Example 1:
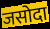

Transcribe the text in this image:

जसोदा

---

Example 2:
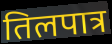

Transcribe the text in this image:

तिलपात्र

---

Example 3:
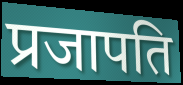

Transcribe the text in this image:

प्रजापति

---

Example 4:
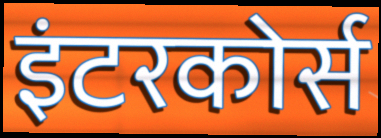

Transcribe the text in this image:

इंटरकोर्स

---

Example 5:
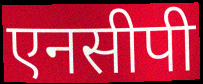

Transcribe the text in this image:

एनसीपी